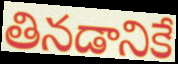
తినడానికే